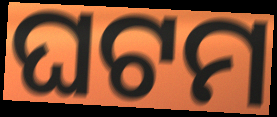
ଘଟମ